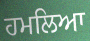
ਹਮਲਿਆ